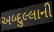
અબ્દુલ્લાની